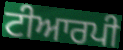
ਟੀਆਰਪੀ